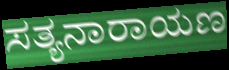
ಸತ್ಯನಾರಾಯಣ